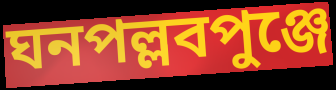
ঘনপল্লবপুঞ্জে